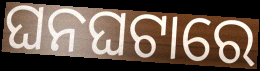
ଘନଘଟାରେ